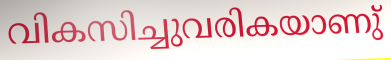
വികസിച്ചുവരികയാണു്